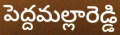
పెద్దమల్లారెడ్డి